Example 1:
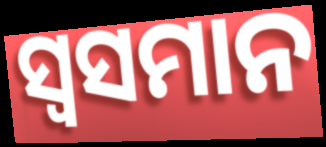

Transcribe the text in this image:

ସ୍ୱସମାନ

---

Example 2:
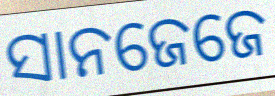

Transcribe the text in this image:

ସାନଜେଜେ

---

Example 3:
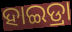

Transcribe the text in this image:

ହାଇଡ୍ରା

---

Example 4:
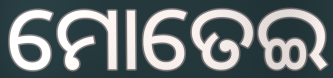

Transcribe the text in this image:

ମୋତେଇ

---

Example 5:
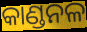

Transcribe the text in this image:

କାଣ୍ଡନଳ